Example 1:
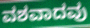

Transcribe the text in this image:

ವಶವಾದವು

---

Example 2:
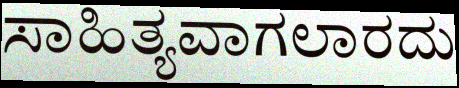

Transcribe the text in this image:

ಸಾಹಿತ್ಯವಾಗಲಾರದು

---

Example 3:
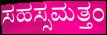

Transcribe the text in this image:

ಸಹಸ್ಸಮತ್ತಂ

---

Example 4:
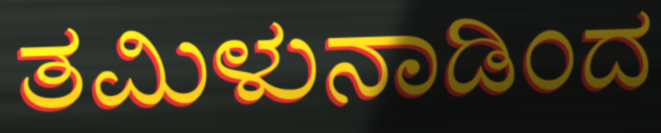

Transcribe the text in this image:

ತಮಿಳುನಾಡಿಂದ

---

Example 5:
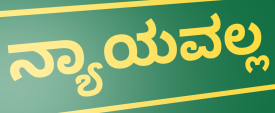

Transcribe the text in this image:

ನ್ಯಾಯವಲ್ಲ